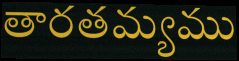
తారతమ్యము